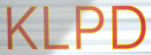
KLPD